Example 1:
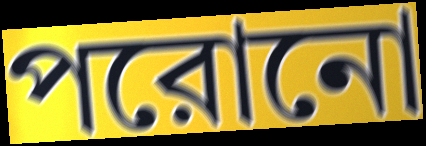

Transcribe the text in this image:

পরোনো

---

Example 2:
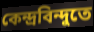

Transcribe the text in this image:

কেন্দ্রবিন্দুতে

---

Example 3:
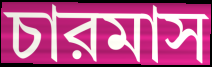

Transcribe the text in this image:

চারমাস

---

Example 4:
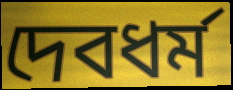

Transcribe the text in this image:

দেবধর্ম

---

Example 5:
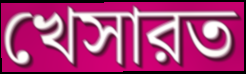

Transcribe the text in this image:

খেসারত